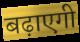
बढ़ाएगी